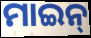
ମାଇନ୍